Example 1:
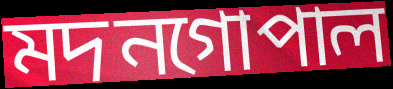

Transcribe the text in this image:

মদনগোপাল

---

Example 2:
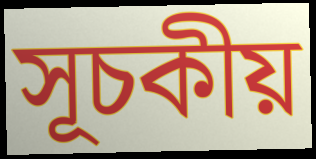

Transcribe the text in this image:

সূচকীয়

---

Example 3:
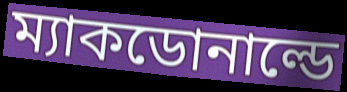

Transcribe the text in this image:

ম্যাকডোনাল্ডে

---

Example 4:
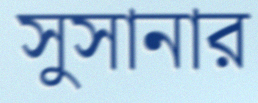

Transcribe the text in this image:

সুসানার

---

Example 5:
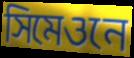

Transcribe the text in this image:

সিমেওনে